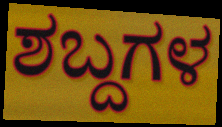
ಶಬ್ದಗಳ